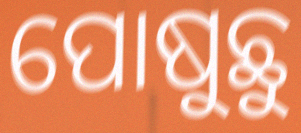
ପୋଷୁଛୁ